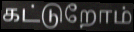
கட்டுறோம்